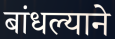
बांधल्याने